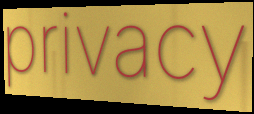
privacy